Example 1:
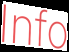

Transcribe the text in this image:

Info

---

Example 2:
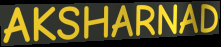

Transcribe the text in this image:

AKSHARNAD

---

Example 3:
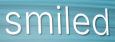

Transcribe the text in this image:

smiled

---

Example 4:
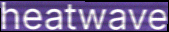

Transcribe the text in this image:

heatwave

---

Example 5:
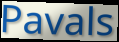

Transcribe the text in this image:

Pavals